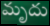
మృదు